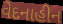
વેદનાહીન